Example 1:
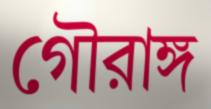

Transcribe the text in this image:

গৌরাঙ্গ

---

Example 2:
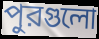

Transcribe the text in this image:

পুরগুলো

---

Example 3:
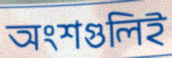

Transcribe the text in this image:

অংশগুলিই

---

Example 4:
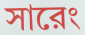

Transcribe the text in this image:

সারেং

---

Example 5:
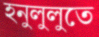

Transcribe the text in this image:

হনুলুলুতে